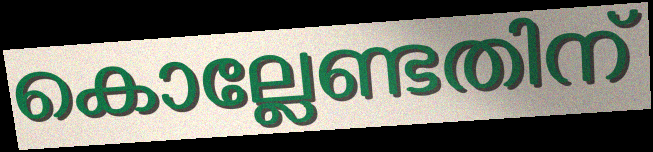
കൊല്ലേണ്ടതിന്